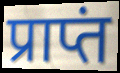
प्राप्तं